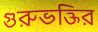
গুরুভক্তির